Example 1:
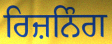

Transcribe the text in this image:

ਰਿਜ਼ਨਿੰਗ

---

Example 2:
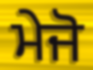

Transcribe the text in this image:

ਮੇਜੋ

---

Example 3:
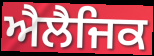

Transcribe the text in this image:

ਐਲੈਜਿਕ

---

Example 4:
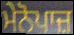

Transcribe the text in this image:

ਮੇਨੋਪਾਜ਼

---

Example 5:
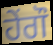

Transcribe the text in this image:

ਹੇਂਗੌ